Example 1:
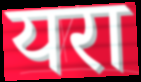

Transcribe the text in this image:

यरा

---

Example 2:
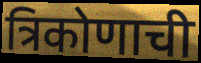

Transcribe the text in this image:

त्रिकोणाची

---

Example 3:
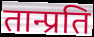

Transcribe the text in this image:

तान्प्रति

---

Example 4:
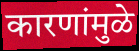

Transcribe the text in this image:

कारणांमुळे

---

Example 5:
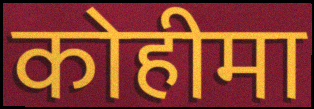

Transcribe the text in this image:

कोहीमा